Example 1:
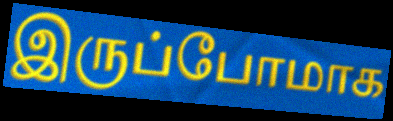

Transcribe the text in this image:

இருப்போமாக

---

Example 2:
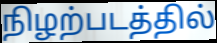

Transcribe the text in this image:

நிழற்படத்தில்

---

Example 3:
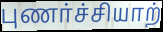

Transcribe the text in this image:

புணர்ச்சியாற்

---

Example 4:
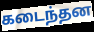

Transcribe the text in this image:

கடைந்தன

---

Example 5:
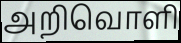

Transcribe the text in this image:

அறிவொளி